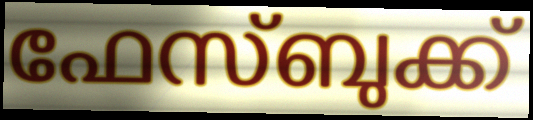
ഫേസ്ബുക്ക്